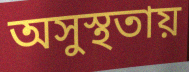
অসুস্থতায়